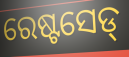
ରେଷ୍ଟସେଡ୍